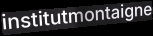
institutmontaigne